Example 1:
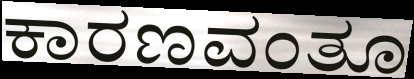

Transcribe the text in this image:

ಕಾರಣವಂತೂ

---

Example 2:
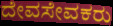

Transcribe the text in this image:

ದೇವಸೇವಕರು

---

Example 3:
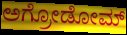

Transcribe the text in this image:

ಅಗ್ರೋಡೋಮ್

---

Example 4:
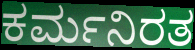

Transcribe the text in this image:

ಕರ್ಮನಿರತ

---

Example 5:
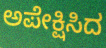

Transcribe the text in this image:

ಅಪೇಕ್ಷಿಸಿದ